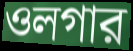
ওলগার